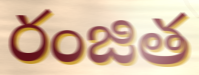
రంజిత